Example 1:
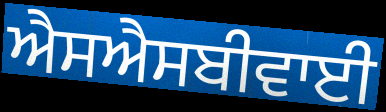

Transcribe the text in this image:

ਐਸਐਸਬੀਵਾਈ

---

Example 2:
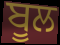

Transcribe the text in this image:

ਬੂਲ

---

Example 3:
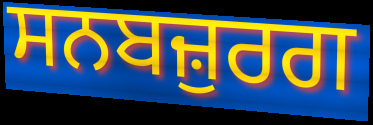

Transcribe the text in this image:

ਸਨਬਜ਼ੁਰਗ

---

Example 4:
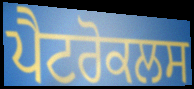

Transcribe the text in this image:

ਪੈਟਰੋਕਲਸ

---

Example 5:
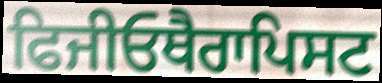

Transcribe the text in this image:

ਫਿਜੀਓਥੈਰਾਪਿਸਟ